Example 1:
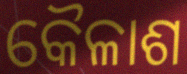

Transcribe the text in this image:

କୈଳାଶ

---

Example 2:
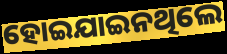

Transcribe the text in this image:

ହୋଇଯାଇନଥିଲେ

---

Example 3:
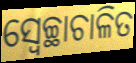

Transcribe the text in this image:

ସ୍ୱେଚ୍ଛାଚାଳିତ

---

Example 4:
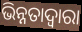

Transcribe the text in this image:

ଭିନ୍ନତାଦ୍ୱାରା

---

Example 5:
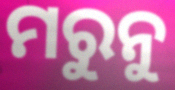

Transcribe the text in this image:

ମରୁନୁ